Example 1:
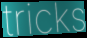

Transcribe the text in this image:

tricks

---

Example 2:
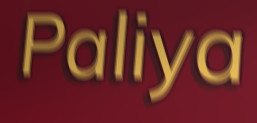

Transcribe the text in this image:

Paliya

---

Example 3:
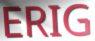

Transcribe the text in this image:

ERIG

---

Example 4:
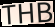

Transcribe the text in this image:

THB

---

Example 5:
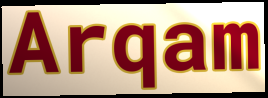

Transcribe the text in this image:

Arqam